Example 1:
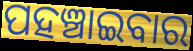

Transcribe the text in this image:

ପହଞ୍ଚାଇବାର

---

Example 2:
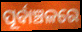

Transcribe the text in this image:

ପୂର୍ବାଞ୍ଚଳରେ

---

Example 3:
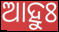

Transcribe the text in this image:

ଆହୁଃ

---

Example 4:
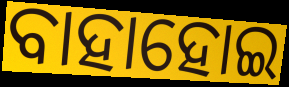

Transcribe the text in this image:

ବାହାହୋଇ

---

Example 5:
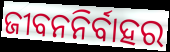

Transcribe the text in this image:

ଜୀବନନିର୍ବାହର